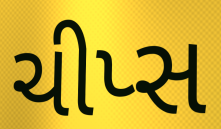
ચીપ્સ